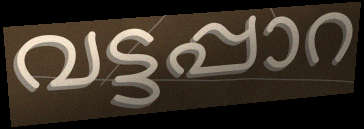
വട്ടപ്പാറ